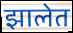
झालेत